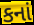
કનાં